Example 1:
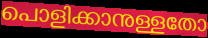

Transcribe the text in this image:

പൊളിക്കാനുള്ളതോ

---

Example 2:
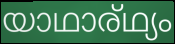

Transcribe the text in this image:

യാഥാര്ഥ്യം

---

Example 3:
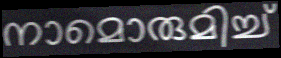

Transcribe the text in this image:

നാമൊരുമിച്ച്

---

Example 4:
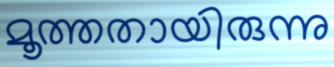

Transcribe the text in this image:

മൂത്തതായിരുന്നു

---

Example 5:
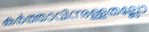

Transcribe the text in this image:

കർത്താവിന്നുള്ളതല്ലോ